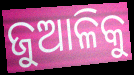
ଜୁଆଳିକୁ